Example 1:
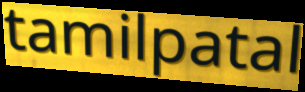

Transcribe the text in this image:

tamilpatal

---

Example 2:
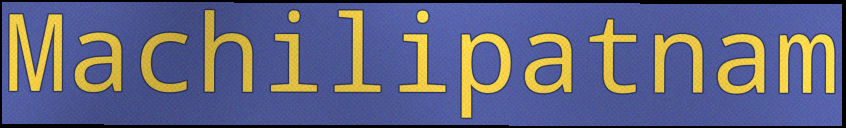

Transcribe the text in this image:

Machilipatnam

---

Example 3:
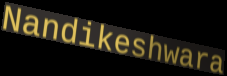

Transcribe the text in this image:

Nandikeshwara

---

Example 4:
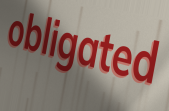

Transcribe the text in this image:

obligated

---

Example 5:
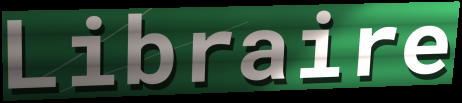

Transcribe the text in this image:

Libraire